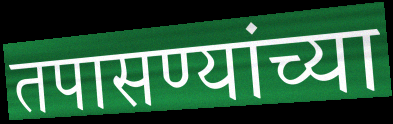
तपासण्यांच्या